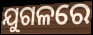
ଯୁଗଳରେ